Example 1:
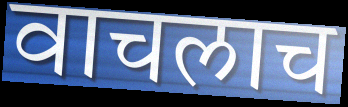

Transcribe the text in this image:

वाचलाच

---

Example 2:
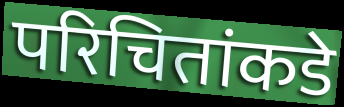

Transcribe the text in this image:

परिचितांकडे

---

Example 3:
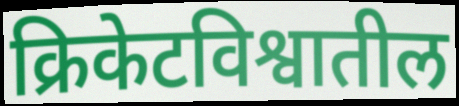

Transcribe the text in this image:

क्रिकेटविश्वातील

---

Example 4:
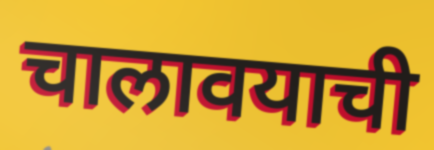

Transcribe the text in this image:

चालावयाची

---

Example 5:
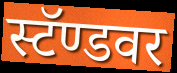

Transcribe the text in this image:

स्टॅण्डवर